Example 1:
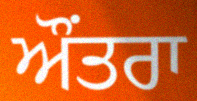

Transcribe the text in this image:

ਔਂਤਰਾ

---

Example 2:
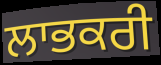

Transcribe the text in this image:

ਲਾਭਕਰੀ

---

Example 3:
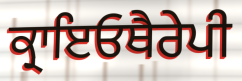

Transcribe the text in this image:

ਕ੍ਰਾਇਓਥੈਰੇਪੀ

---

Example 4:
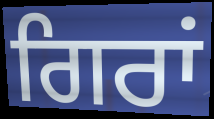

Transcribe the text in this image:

ਗਿਰਾਂ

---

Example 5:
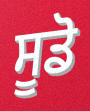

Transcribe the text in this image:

ਸੂਡੋ